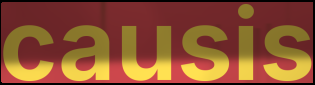
causis